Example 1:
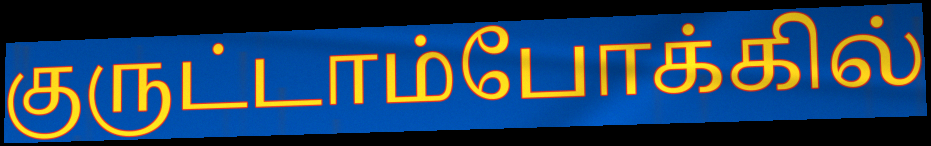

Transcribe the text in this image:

குருட்டாம்போக்கில்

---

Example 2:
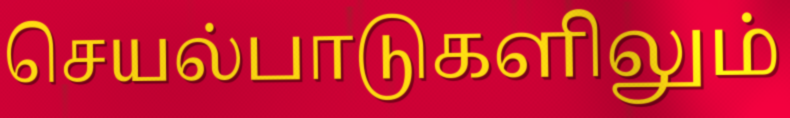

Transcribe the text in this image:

செயல்பாடுகளிலும்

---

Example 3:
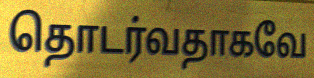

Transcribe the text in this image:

தொடர்வதாகவே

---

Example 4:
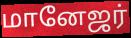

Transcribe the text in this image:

மானேஜர்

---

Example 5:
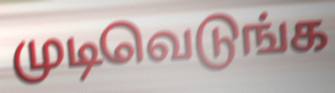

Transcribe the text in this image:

முடிவெடுங்க